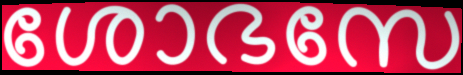
ശോഭസേ